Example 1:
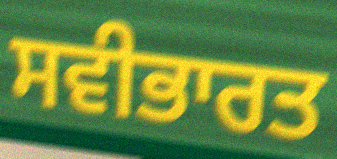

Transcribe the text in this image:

ਸਵੀਭਾਰਤ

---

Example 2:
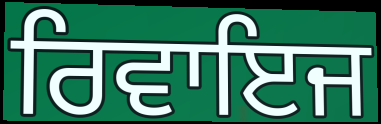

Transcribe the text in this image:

ਰਿਵਾਇਜ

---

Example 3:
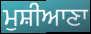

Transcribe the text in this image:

ਮੁਸ਼ੀਆਣਾ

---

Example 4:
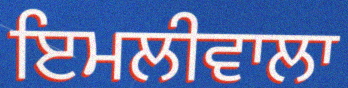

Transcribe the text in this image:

ਇਮਲੀਵਾਲਾ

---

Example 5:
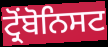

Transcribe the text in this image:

ਟ੍ਰੋਂਬੋਨਿਸਟ